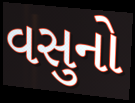
વસુનો